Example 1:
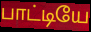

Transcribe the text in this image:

பாட்டியே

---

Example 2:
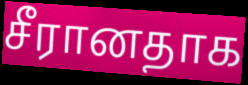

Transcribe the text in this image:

சீரானதாக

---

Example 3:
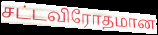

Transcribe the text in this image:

சட்டவிரோதமான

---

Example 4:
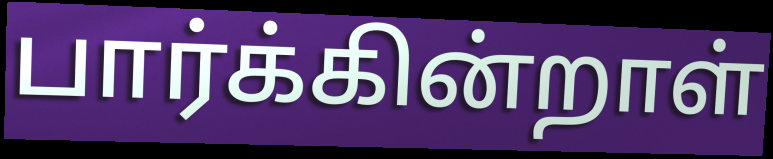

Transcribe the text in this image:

பார்க்கின்றாள்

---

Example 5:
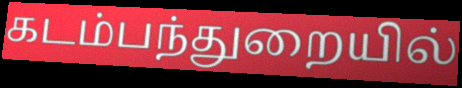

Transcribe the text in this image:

கடம்பந்துறையில்